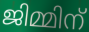
ജിമ്മിന്